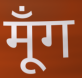
मूँग